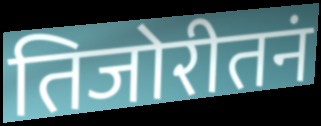
तिजोरीतनं